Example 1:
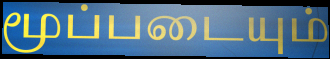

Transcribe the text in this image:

மூப்படையும்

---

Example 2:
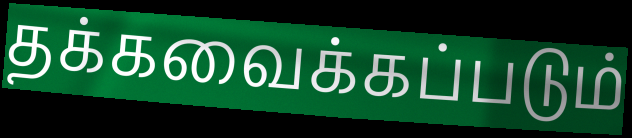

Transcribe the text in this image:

தக்கவைக்கப்படும்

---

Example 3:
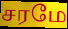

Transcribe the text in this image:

சரமே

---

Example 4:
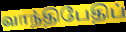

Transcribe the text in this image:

வாந்திபேதிப்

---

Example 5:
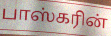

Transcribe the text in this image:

பாஸ்கரின்